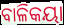
ବାଳିକୟା